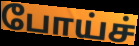
போய்ச்